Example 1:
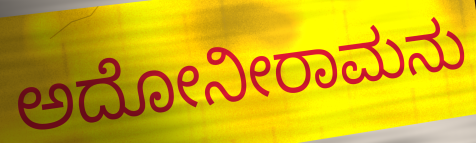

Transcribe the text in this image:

ಅದೋನೀರಾಮನು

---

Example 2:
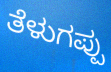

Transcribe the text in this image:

ತೆಳುಗಪ್ಪು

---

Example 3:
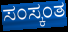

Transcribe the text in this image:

ಸಂಸ್ಕಂತ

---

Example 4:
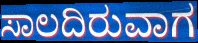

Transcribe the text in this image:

ಸಾಲದಿರುವಾಗ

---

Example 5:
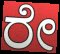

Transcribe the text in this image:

ರೇ